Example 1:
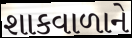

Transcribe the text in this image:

શાકવાળાને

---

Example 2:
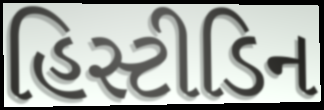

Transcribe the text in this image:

હિસ્ટીડિન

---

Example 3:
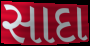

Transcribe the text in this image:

સાદા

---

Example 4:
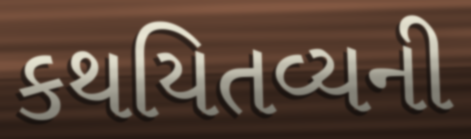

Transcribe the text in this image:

કથયિતવ્યની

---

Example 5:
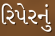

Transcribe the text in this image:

રિપેરનું